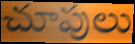
చూపులు